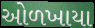
ઓળખાયા